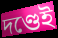
দণ্ডেই